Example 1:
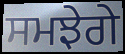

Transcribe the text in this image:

ਸਮਝੇਗੇ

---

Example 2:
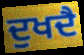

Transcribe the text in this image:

ਦੁਖਦੈ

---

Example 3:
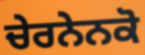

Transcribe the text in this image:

ਚੇਰਨੇਨਕੋ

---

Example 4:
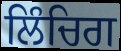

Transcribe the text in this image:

ਲਿੰਚਿਗ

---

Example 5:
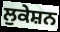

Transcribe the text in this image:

ਲੁਕੇਸ਼ਨ